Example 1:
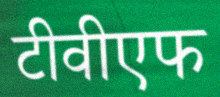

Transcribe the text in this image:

टीवीएफ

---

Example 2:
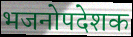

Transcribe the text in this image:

भजनोपदेशक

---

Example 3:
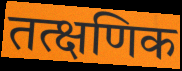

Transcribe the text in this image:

तत्क्षणिक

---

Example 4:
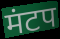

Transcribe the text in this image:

मंटप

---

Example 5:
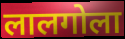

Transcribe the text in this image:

लालगोला